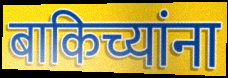
बाकिच्यांना